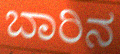
ಬಾರಿನ